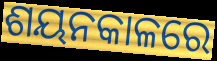
ଶୟନକାଳରେ